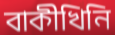
বাকীখিনি